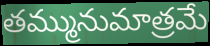
తమ్మునుమాత్రమే